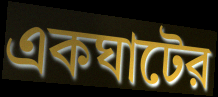
একঘাটের